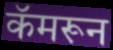
कॅमरून